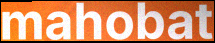
mahobat